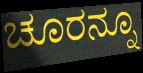
ಚೂರನ್ನೂ